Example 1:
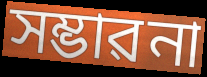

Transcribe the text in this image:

সম্ভাৱনা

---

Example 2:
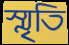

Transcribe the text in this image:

স্মৃতি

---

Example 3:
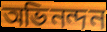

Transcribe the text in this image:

অভিনন্দন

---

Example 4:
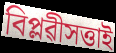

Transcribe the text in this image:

বিপ্লৱীসত্তাই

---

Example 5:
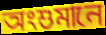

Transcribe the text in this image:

অংশুমানে